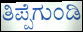
ತಿಪ್ಪೆಗುಂಡಿ